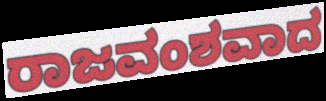
ರಾಜವಂಶವಾದ